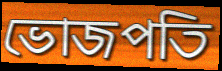
ভোজপতি